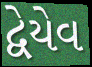
દ્વેયેવ